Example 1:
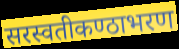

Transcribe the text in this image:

सरस्वतीकण्ठाभरण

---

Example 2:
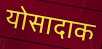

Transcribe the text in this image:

योसादाक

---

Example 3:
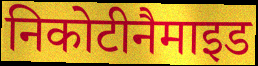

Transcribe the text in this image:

निकोटीनैमाइड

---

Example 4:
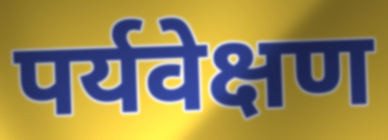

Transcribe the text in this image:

पर्यवेक्षण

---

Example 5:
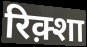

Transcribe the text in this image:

रिक़्शा